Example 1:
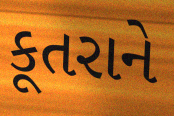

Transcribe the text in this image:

કૂતરાને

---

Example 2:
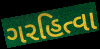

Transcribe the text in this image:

ગરહિત્વા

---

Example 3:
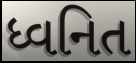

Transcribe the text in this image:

ધ્વનિત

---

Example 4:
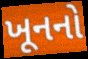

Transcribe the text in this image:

ખૂનનો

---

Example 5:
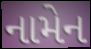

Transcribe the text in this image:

નામેન